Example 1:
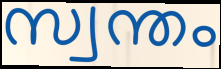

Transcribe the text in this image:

സ്വന്തം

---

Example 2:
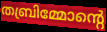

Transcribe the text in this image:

തബ്രിമ്മോന്റെ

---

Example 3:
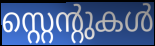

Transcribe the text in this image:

സ്റ്റെന്റുകൾ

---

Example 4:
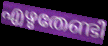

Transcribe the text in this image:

എഴുതേണ്ടി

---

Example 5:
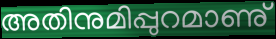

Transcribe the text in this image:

അതിനുമിപ്പുറമാണു്